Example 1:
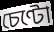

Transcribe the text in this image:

চেণ্টো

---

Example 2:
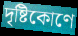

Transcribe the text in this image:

দৃষ্টিকোণে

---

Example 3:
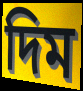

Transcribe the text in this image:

দিম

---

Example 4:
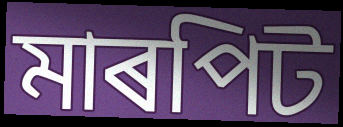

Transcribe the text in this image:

মাৰপিট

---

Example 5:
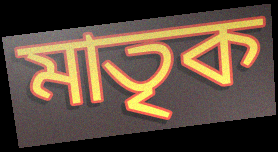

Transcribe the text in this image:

মাতৃক